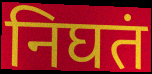
निघतं